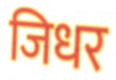
जिधर